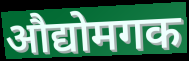
औद्योमगक